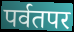
पर्वतपर